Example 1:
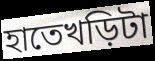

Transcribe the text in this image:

হাতেখড়িটা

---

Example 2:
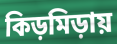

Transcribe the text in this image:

কিড়মিড়ায়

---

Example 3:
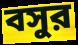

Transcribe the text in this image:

বসুর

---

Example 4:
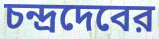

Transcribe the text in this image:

চন্দ্রদেবের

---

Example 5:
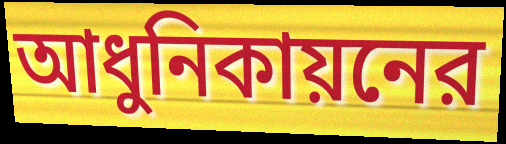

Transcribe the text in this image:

আধুনিকায়নের